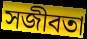
সজীবতা